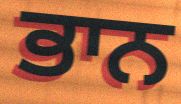
ਭਾਨ